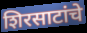
शिरसाटांचे